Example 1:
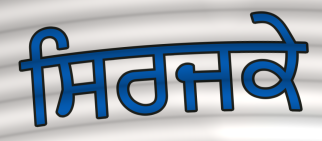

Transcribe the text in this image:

ਸਿਰਜਕੇ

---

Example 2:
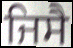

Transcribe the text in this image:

ਜਿਸੈ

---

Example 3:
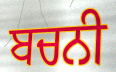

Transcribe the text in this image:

ਬਚਨੀ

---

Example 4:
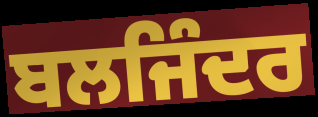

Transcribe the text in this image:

ਬਲਜਿੰਦਰ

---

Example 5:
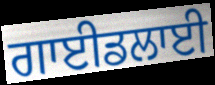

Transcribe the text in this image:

ਗਾਈਡਲਾਈ